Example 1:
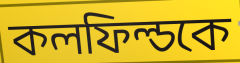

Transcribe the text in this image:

কলফিল্ডকে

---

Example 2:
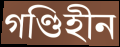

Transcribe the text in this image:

গণ্ডিহীন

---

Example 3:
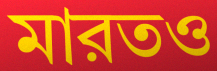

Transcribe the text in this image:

মারতও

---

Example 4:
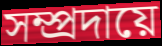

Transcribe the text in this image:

সম্প্রদায়ে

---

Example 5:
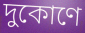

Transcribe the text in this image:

দুকোণে